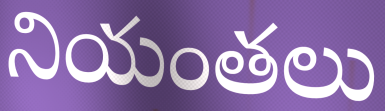
నియంతలు